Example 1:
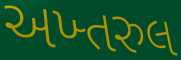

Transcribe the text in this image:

અખ્તરુલ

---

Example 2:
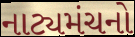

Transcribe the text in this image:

નાટ્યમંચનો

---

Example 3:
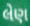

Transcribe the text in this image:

લેણ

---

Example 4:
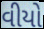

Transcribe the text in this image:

વીયો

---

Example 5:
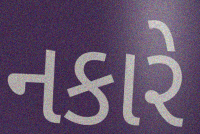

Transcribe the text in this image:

નકારે